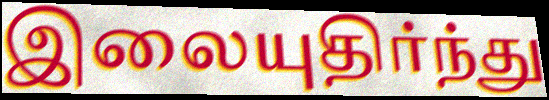
இலையுதிர்ந்து